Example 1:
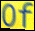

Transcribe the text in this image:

Of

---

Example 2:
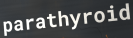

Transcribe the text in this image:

parathyroid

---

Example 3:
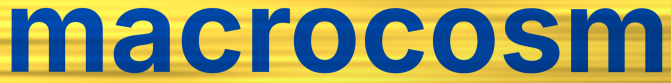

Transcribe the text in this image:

macrocosm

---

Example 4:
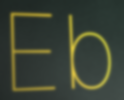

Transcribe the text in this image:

Eb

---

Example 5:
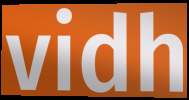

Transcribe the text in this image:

vidh